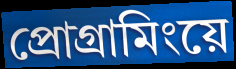
প্রোগ্রামিংয়ে